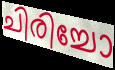
ചിരിച്ചോ